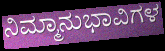
ನಿಮ್ಮಾನುಭಾವಿಗಳ